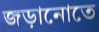
জড়ানোতে